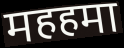
महहमा